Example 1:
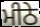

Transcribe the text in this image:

ਮੀਠੇ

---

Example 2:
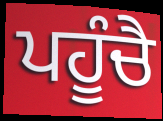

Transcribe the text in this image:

ਪਹੂੰਚੈ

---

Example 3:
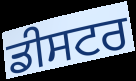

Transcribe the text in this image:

ਡੀਸਟਰ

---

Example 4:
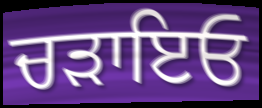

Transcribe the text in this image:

ਚੜਾਇਓ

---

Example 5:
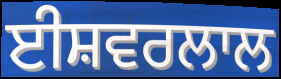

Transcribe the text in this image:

ਈਸ਼ਵਰਲਾਲ